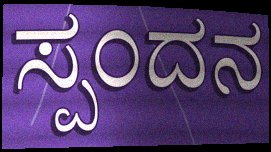
ಸ್ಪಂದನ